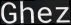
Ghez